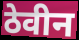
ठेवीन